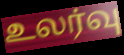
உலர்வு